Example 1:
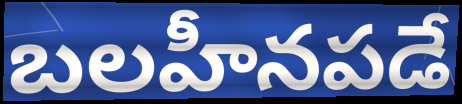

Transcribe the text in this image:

బలహీనపడే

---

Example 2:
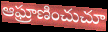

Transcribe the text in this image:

ఆఘ్రాణించుచూ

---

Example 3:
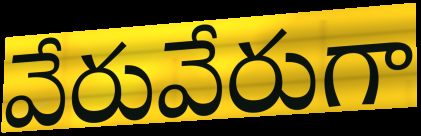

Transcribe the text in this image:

వేరువేరుగా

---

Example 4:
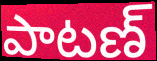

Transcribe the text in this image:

పాటణ్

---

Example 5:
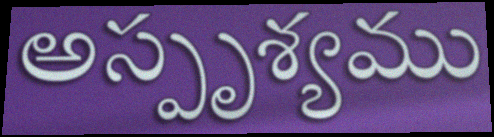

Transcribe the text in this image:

అస్పృశ్యము